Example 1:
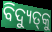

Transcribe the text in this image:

ବିଦ୍ୟୁତ୍‌କୁ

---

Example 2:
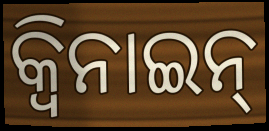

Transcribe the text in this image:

କ୍ୱିନାଇନ୍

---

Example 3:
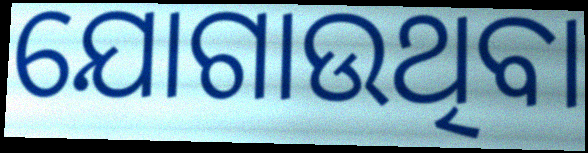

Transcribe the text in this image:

ଯୋଗାଉଥିବା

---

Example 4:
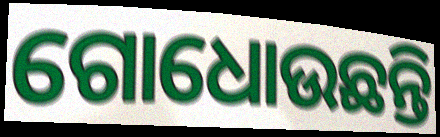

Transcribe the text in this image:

ଗୋଧୋଉଛନ୍ତି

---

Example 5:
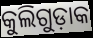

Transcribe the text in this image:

କୁଲିଗୁଡ଼ାକ